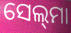
ସେଲ୍‌ମା